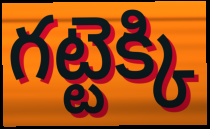
గట్టెక్కి